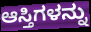
ಆಸ್ತಿಗಳನ್ನು